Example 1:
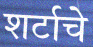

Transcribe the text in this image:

शर्टाचे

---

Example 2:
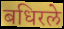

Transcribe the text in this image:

बधिरले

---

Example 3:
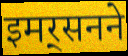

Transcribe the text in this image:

इमर्सनने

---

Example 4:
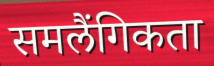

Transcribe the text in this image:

समलैंगिकता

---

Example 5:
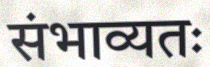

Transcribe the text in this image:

संभाव्यतः